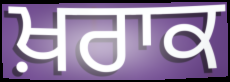
ਖ਼ਰਾਕ